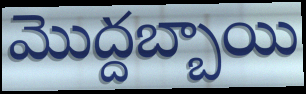
మొద్దబ్బాయి